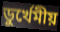
ডুর্খেমীয়